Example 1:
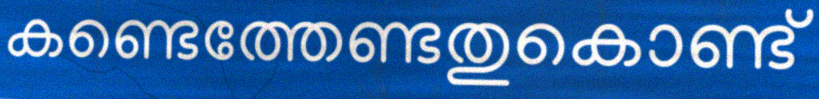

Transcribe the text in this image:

കണ്ടെത്തേണ്ടതുകൊണ്ട്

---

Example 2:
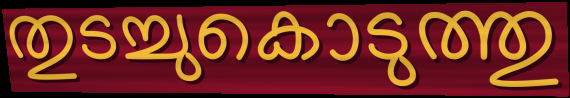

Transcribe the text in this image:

തുടച്ചുകൊടുത്തു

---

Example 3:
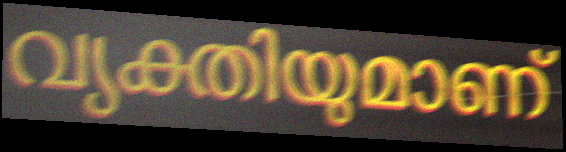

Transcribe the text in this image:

വ്യക്തിയുമാണ്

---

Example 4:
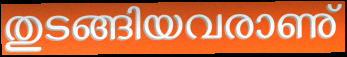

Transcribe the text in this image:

തുടങ്ങിയവരാണു്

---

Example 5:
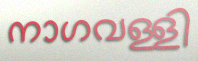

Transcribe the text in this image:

നാഗവള്ളി